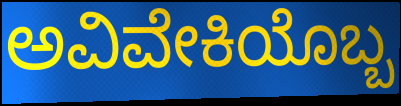
ಅವಿವೇಕಿಯೊಬ್ಬ